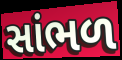
સાંભળ